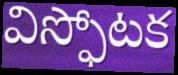
విస్ఫోటక